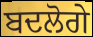
ਬਦਲੋਗੇ